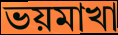
ভয়মাখা